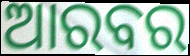
ଆରବର